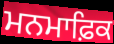
ਮਨਮਾਫ਼ਿਕ